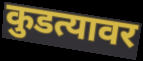
कुडत्यावर